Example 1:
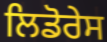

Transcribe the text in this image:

ਲਿਡੋਰੇਸ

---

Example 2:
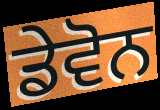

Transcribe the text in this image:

ਡੇਵੋਨ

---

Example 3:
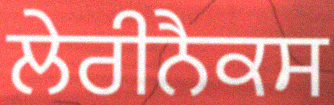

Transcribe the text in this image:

ਲੇਰੀਨੈਕਸ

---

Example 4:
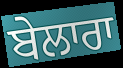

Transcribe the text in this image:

ਬੇਲਾਰਾ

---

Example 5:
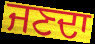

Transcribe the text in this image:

ਜਣਦਾ